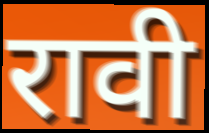
रावी